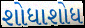
શોધાશોધ